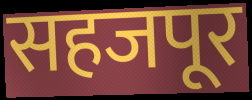
सहजपूर